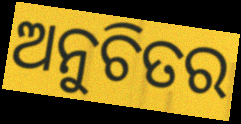
ଅନୁଚିତର